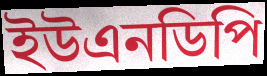
ইউএনডিপি